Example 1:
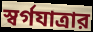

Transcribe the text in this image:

স্বর্গযাত্রার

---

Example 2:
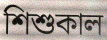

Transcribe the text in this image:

শিশুকাল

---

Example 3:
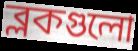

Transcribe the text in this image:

ব্লকগুলো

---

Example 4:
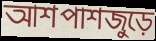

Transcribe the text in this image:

আশপাশজুড়ে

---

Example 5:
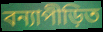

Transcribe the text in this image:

বন্যাপীড়িত